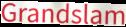
Grandslam